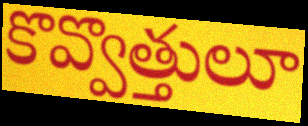
కొవ్వొత్తులూ